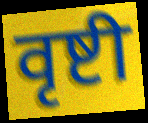
वृष्टी